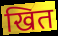
खित